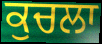
ਕੁਚਲਾ